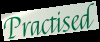
Practised